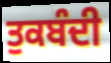
ਤੁਕਬੰਦੀ